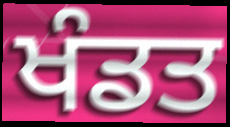
ਖੰਡਤ